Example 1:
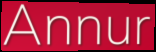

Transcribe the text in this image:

Annur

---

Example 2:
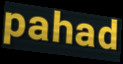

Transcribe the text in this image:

pahad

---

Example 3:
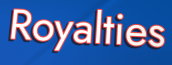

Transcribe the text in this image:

Royalties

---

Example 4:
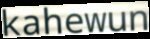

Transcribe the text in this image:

kahewun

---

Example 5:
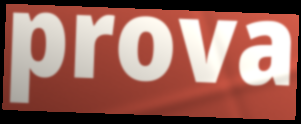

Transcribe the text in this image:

prova